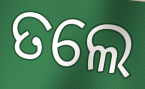
ତଲେ